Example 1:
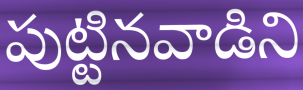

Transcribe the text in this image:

పుట్టినవాడిని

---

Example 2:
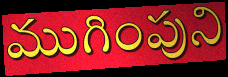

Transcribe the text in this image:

ముగింపుని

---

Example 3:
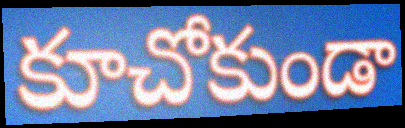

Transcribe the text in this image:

కూచోకుండా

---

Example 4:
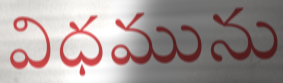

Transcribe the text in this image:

విధమును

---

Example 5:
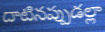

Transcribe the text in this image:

దాటినప్పుడల్లా